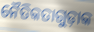
ନୈତିକତାଗୁଡ଼ାକ